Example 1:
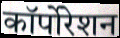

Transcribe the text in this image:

कॉर्पोरेशन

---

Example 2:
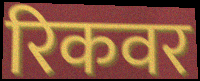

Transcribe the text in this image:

रिकवर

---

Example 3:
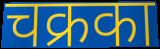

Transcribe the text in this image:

चक्रका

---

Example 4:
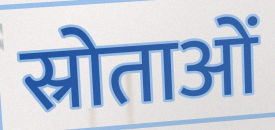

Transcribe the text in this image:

स्रोताओं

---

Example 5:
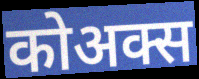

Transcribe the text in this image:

कोअक्स